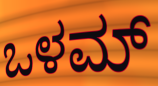
ಒಳಮ್